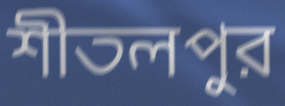
শীতলপুর